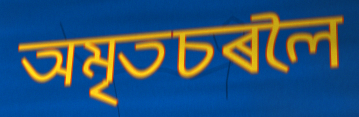
অমৃতচৰলৈ